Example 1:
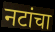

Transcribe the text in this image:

नटांचा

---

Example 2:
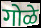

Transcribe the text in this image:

गोळे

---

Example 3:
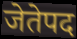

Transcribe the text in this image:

जेतेपद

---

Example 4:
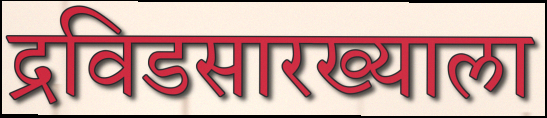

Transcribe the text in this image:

द्रविडसारख्याला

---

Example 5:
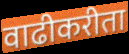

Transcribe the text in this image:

वाढीकरीता